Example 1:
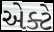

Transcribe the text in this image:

એક્ટે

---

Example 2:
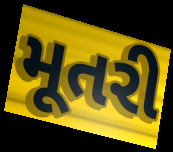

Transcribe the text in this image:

મૂતરી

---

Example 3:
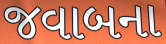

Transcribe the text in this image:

જવાબના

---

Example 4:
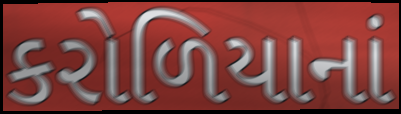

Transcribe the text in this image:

કરોળિયાનાં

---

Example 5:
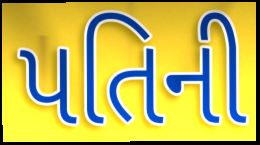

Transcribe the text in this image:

પતિની